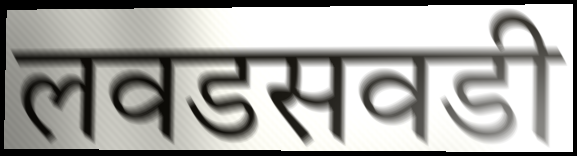
लवडसवडी